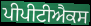
ਪੀਪੀਟੀਐਕਸ